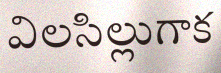
విలసిల్లుగాక